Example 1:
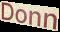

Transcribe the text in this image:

Donn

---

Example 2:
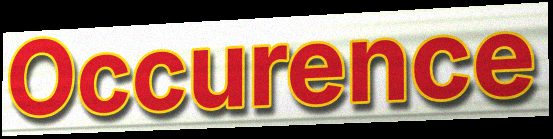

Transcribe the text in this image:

Occurence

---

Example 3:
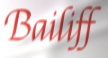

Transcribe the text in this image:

Bailiff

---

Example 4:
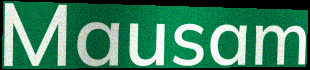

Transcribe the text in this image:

Mausam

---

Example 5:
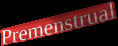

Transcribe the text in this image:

Premenstrual